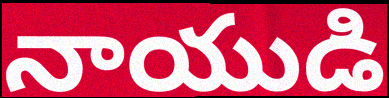
నాయుడి